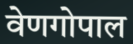
वेणगोपाल